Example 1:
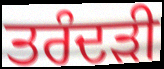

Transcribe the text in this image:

ਤਰੰਦੜੀ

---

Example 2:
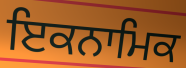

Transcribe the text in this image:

ਇਕਨਾਮਿਕ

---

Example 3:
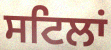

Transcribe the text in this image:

ਸਟਿਲਾਂ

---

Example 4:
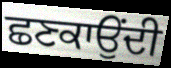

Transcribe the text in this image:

ਛਣਕਾਉਂਦੀ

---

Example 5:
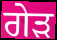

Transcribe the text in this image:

ਗੇੜ